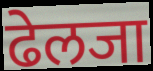
ढेलजा